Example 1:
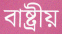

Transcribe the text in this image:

বাষ্ট্রীয়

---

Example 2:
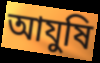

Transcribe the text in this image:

আযুষি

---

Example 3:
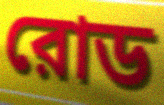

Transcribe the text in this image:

রোড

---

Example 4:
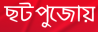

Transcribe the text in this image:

ছটপুজোয়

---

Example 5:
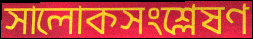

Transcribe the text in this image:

সালোকসংশ্লেষণ